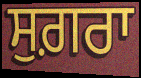
ਸੁਗ਼ਰਾ